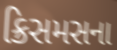
ક્રિસમસના